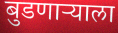
बुडणाऱ्याला